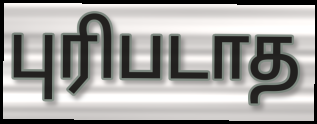
புரிபடாத